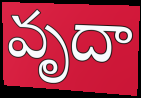
వృదా